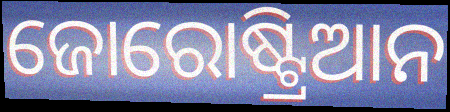
ଜୋରୋଷ୍ଟ୍ରିଆନ